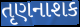
તૃણનાશક